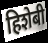
हिशेबी